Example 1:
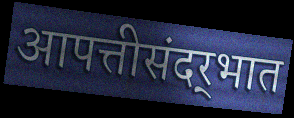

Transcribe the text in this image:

आपत्तीसंदर्भात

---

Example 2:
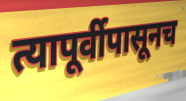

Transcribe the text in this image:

त्यापूर्वीपासूनच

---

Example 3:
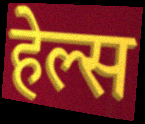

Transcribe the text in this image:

हेल्स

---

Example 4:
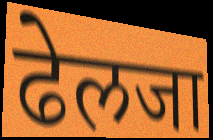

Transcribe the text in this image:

ढेलजा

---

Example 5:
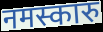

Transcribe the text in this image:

नमस्कारु